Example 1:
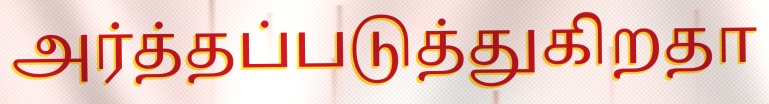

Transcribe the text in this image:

அர்த்தப்படுத்துகிறதா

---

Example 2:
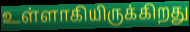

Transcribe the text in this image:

உள்ளாகியிருக்கிறது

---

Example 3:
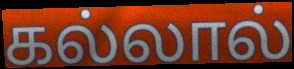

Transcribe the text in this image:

கல்லால்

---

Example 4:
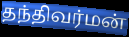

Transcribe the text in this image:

தந்திவர்மன்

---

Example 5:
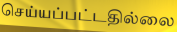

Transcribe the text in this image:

செய்யப்பட்டதில்லை